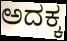
ಅದಕ್ಕ